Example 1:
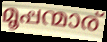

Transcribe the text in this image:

മൂപ്പന്മാര്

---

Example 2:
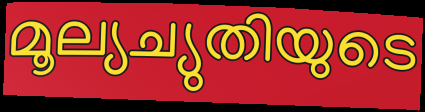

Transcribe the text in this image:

മൂല്യച്യുതിയുടെ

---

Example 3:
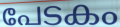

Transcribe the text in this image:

പേടകം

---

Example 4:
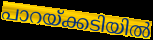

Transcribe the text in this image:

പാറയ്ക്കടിയിൽ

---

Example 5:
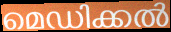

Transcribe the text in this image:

മെഡിക്കൽ